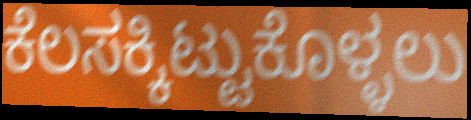
ಕೆಲಸಕ್ಕಿಟ್ಟುಕೊಳ್ಳಲು